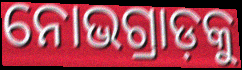
ନୋଭଗ୍ରାଡ଼କୁ